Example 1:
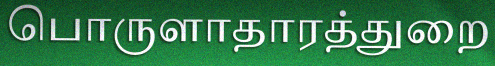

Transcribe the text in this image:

பொருளாதாரத்துறை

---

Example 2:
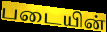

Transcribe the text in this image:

படையின்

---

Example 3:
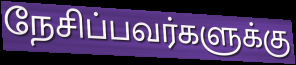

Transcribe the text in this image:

நேசிப்பவர்களுக்கு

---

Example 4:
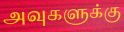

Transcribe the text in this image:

அவுகளுக்கு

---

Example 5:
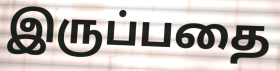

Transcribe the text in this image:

இருப்பதை